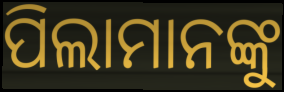
ପିଲାମାନଙ୍କୁ